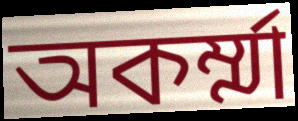
অকর্ম্মা